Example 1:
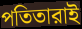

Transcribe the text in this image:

পতিতারাই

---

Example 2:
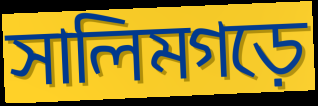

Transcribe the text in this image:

সালিমগড়ে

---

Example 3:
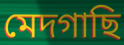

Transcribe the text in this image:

মেদগাছি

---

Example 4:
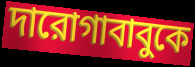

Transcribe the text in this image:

দারোগাবাবুকে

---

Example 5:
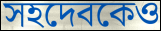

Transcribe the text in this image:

সহদেবকেও